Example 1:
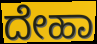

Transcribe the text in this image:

ದೇಹಾ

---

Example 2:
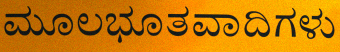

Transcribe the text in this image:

ಮೂಲಭೂತವಾದಿಗಳು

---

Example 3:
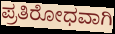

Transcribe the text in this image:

ಪ್ರತಿರೋಧವಾಗಿ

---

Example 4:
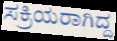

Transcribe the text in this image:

ಸಕ್ರಿಯರಾಗಿದ್ದ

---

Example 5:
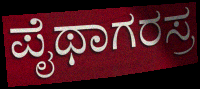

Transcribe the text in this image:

ಪೈಥಾಗರಸ್ರ